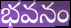
భవనం